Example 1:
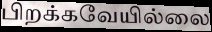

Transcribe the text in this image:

பிறக்கவேயில்லை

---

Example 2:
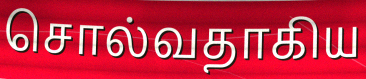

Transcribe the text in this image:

சொல்வதாகிய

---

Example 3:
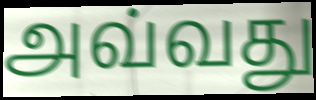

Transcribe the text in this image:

அவ்வது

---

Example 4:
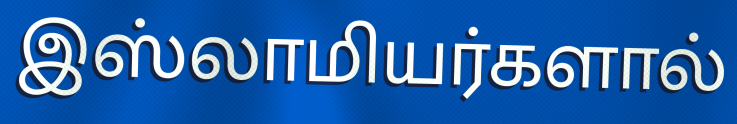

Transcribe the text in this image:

இஸ்லாமியர்களால்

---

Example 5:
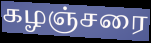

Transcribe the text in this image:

கழஞ்சரை